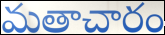
మతాచారం